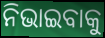
ନିଭାଇବାକୁ